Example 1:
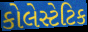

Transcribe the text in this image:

કોલેસ્ટેટિક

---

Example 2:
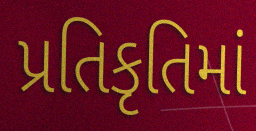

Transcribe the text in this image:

પ્રતિકૃતિમાં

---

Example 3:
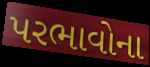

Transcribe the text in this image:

પરભાવોના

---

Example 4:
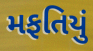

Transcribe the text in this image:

મફતિયું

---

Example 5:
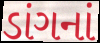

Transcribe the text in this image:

ડાંગનાં